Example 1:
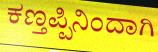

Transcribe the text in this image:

ಕಣ್ತಪ್ಪಿನಿಂದಾಗಿ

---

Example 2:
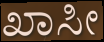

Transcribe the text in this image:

ಖಾಸೀ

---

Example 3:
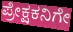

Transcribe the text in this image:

ಪ್ರೇಕ್ಷಕನಿಗೇ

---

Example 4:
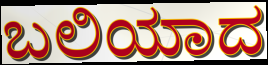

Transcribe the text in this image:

ಬಲಿಯಾದ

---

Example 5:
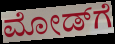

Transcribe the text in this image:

ಮೋಡ್‌ಗೆ